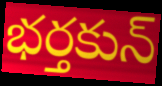
భర్తకున్